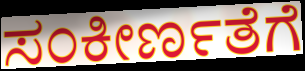
ಸಂಕೀರ್ಣತೆಗೆ